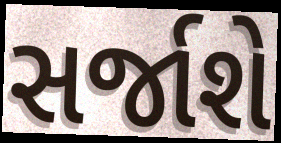
સર્જાશે